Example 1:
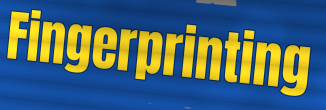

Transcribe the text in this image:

Fingerprinting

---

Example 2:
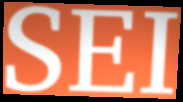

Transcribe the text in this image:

SEI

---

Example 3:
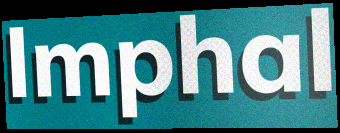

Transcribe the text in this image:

Imphal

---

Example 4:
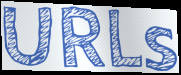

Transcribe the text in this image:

URLs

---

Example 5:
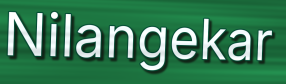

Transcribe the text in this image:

Nilangekar